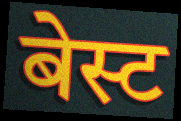
बेस्‍ट